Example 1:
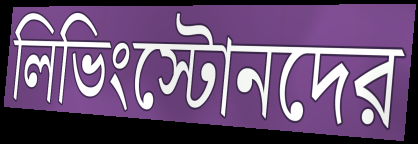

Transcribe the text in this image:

লিভিংস্টোনদের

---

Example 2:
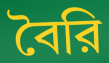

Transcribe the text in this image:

বৈরি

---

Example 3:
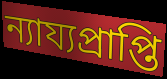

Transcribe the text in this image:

ন্যায্যপ্রাপ্তি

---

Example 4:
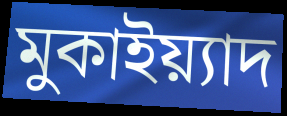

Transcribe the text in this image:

মুকাইয়্যাদ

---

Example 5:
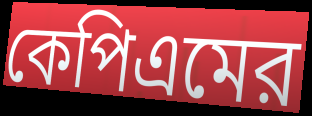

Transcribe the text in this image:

কেপিএমের